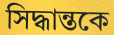
সিদ্ধান্তকে